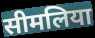
सीमलिया